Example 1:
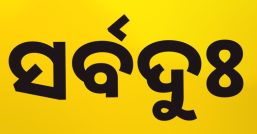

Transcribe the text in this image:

ସର୍ବଦୁଃ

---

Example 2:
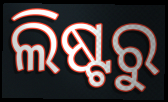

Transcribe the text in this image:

ଲିଷ୍ଟରୁ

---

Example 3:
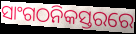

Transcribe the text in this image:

ସାଂଗଠନିକସ୍ତରରେ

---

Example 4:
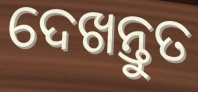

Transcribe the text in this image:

ଦେଖନ୍ତୁତ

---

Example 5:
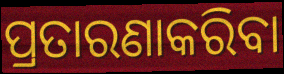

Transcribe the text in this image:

ପ୍ରତାରଣାକରିବା